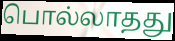
பொல்லாதது